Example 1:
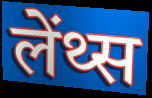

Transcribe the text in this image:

लेंथ्स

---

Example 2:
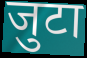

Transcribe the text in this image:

जुटा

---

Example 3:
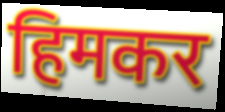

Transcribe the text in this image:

हिमकर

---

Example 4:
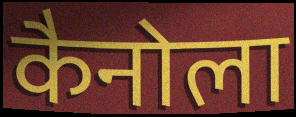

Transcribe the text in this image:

कैनोला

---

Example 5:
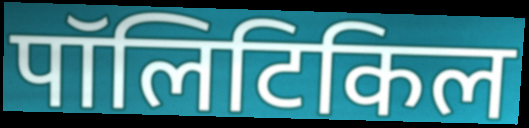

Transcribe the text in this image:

पॉलिटिकिल